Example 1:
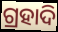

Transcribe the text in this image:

ଗ୍ରହାଦି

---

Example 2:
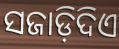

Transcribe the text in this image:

ସଜାଡ଼ିଦିଏ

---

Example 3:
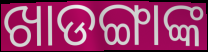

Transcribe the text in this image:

ଖାଡଙ୍ଗାଙ୍କ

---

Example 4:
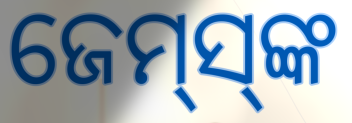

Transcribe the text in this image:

ଜେମ୍‌ସ୍‌ଙ୍କ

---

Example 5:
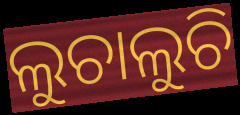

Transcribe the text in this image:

ଲୁଚାଲୁଚି